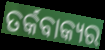
ତର୍କବାକ୍ୟର